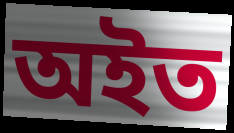
অইত